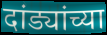
दांड्यांच्या